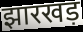
झारखड़